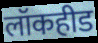
लॉकहीड